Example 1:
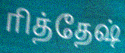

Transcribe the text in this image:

ரித்தேஷ்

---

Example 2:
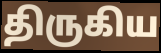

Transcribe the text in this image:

திருகிய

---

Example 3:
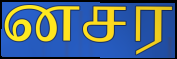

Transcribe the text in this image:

னசர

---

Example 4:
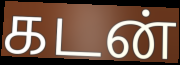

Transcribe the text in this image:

கடன்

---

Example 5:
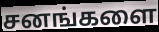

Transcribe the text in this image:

சனங்களை